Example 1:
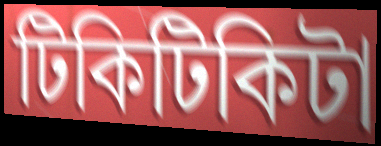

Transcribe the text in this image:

টিকিটিকিটা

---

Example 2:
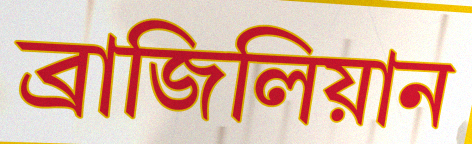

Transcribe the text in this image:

ব্রাজিলিয়ান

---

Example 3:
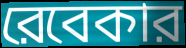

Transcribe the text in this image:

রেবেকার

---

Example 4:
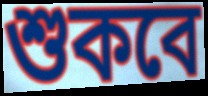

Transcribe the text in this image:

শুকবে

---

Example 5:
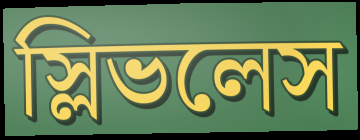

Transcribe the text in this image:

স্লিভলেস